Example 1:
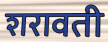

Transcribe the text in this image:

शरावती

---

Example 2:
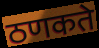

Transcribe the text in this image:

ठणकते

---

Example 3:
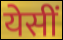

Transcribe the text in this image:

येसीं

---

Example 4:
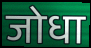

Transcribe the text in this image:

जोधा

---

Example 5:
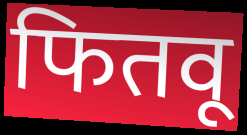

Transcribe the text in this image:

फितवू